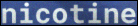
nicotine